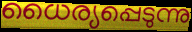
ധൈര്യപ്പെടുന്നു